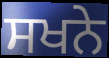
ਸਖਨੇ